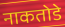
नाकतोडे